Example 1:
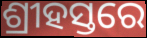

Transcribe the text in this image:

ଶ୍ରୀହସ୍ତରେ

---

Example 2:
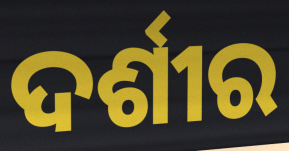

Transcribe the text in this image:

ଦର୍ଶୀର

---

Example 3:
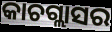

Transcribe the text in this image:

କାଚଗ୍ଲାସର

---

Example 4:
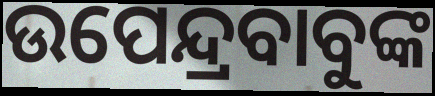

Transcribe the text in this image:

ଉପେନ୍ଦ୍ରବାବୁଙ୍କ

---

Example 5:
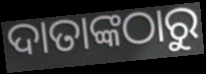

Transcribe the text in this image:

ଦାତାଙ୍କଠାରୁ